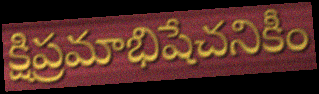
క్షిప్రమాభిషేచనికీం